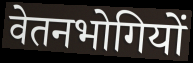
वेतनभोगियों